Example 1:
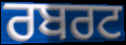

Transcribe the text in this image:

ਰਬਰਟ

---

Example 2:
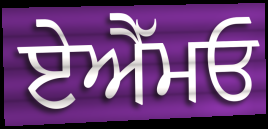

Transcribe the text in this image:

ਏਐੱਮਓ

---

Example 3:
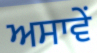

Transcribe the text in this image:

ਅਸਾਵੇਂ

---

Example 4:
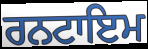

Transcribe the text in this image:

ਰਨਟਾਇਮ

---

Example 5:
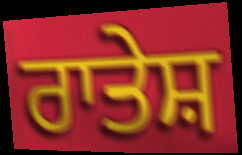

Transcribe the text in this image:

ਰਾਤੇਸ਼